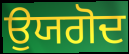
ਉਯਗੋਦ